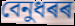
বেনুধৰৰ